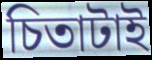
চিতাটাই